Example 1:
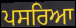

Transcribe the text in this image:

ਪਸਰਿਆ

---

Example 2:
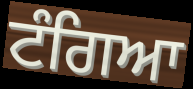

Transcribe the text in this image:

ਟੰਗਿਆ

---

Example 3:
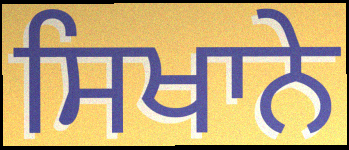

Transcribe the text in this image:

ਸਿਖਾਨੇ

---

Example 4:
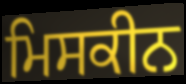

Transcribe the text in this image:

ਮਿਸਕੀਨ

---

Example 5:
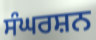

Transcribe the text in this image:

ਸੰਘਰਸ਼ਨ